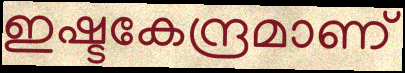
ഇഷ്ടകേന്ദ്രമാണ്